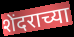
शेंदराच्या